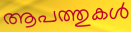
ആപത്തുകൾ